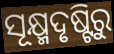
ସୂକ୍ଷ୍ମଦୃଷ୍ଟିରୁ